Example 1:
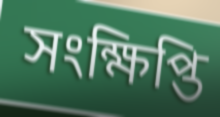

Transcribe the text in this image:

সংক্ষিপ্তি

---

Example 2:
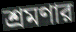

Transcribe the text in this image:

শ্রমণার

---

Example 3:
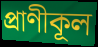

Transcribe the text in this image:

প্রাণীকূল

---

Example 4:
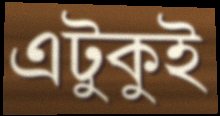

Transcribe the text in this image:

এটুকুই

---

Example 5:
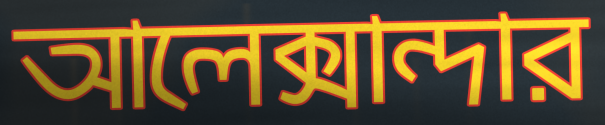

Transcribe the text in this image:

আলেক্সান্দার